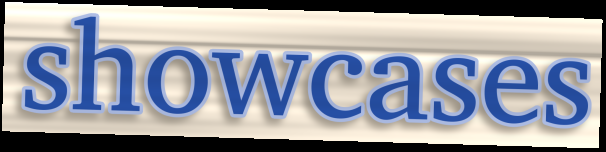
showcases